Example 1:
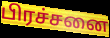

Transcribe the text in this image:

பிரச்சனை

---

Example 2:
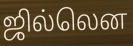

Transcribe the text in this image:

ஜில்லென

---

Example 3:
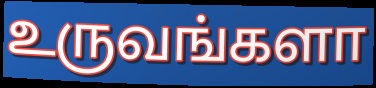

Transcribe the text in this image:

உருவங்களா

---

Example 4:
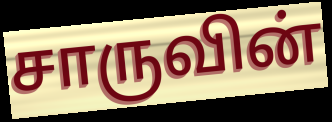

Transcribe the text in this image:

சாருவின்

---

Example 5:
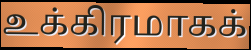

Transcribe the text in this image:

உக்கிரமாகக்